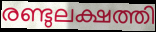
രണ്ടുലക്ഷത്തി